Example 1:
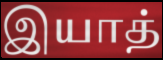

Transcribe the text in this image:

இயாத்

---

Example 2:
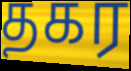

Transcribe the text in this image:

தகர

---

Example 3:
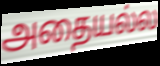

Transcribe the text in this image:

அதையல்ல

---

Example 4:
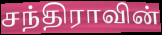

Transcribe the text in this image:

சந்திராவின்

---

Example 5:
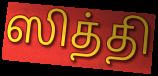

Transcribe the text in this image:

ஸித்தி